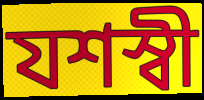
যশস্বী